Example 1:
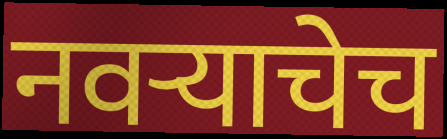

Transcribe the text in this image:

नवऱ्याचेच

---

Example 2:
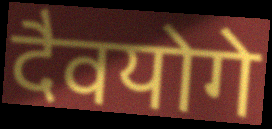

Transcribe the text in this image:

दैवयोगे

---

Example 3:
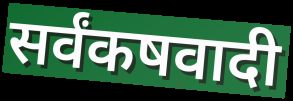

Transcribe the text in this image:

सर्वंकषवादी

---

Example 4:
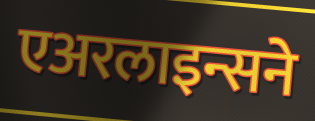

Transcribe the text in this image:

एअरलाइन्सने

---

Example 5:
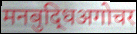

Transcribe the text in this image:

मनबुद्धिअगोचर